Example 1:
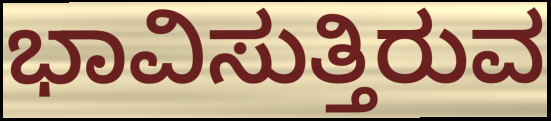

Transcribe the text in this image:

ಭಾವಿಸುತ್ತಿರುವ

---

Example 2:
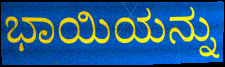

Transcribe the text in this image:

ಭಾಯಿಯನ್ನು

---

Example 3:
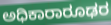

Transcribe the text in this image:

ಅಧಿಕಾರಾರೂಢರ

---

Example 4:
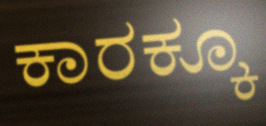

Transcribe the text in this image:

ಕಾರಕ್ಕೂ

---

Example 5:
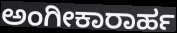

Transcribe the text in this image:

ಅಂಗೀಕಾರಾರ್ಹ